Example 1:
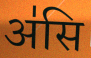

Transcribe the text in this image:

अ॑सि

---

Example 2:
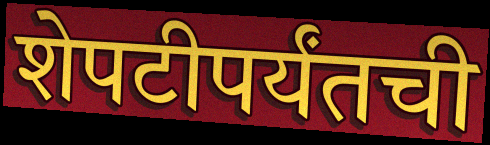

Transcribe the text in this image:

शेपटीपर्यंतची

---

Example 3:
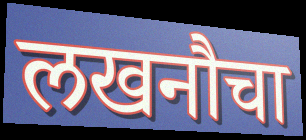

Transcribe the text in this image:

लखनौचा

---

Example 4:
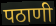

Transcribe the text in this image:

पठाणी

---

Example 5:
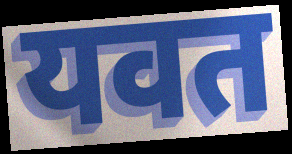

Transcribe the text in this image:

यवत